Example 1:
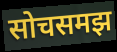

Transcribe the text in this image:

सोचसमझ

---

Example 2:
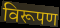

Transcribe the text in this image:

विरूपण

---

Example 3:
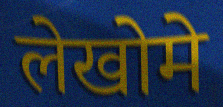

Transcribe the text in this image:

लेखोमे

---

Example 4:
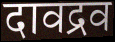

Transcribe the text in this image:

दावद्रव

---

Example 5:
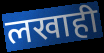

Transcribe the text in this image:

लखाही